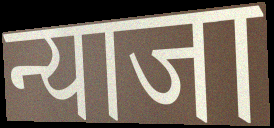
न्याजा